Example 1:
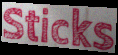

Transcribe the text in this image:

Sticks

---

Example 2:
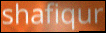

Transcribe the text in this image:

shafiqur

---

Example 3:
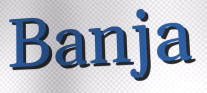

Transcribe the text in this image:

Banja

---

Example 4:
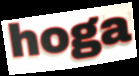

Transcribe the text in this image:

hoga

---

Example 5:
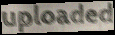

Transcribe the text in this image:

uploaded